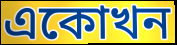
একোখন